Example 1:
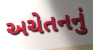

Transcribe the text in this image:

અચેતનનું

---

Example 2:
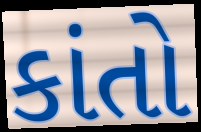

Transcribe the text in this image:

કાંતો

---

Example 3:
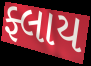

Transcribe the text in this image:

ફ્લાય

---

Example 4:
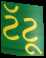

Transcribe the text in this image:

ટૅટૂ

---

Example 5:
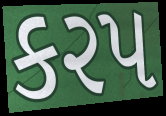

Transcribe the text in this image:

કરપ